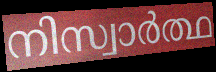
നിസ്വാർത്ഥ